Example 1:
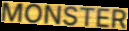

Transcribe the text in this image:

MONSTER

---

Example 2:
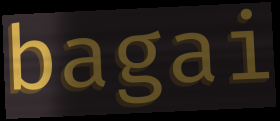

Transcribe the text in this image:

bagai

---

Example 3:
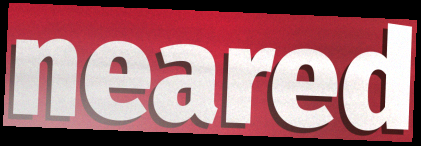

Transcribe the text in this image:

neared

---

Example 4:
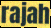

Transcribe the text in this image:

rajah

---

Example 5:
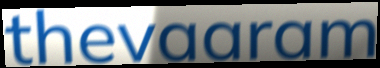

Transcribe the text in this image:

thevaaram